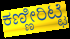
ಕಣ್ಣೀರಿಟ್ಟೆ